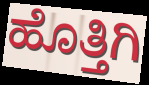
ಹೊತ್ತಿಗಿ